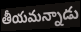
తీయమన్నాడు